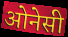
ओनेसी